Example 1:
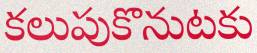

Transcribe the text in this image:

కలుపుకొనుటకు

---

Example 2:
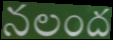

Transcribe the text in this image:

నలంద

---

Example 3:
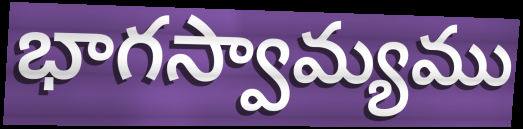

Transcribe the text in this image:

భాగస్వామ్యము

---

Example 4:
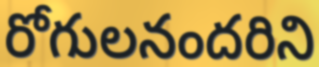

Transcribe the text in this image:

రోగులనందరిని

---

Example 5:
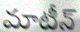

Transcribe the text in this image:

మాటీన్